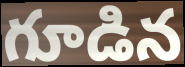
గూడిన